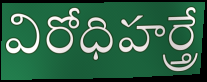
విరోధిహర్త్రే